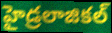
హైడ్రలాజికల్